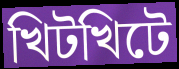
খিটখিটে